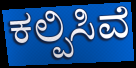
ಕಲ್ಪಿಸಿವೆ